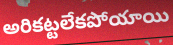
అరికట్టలేకపోయాయి